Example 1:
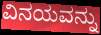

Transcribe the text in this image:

ವಿನಯವನ್ನು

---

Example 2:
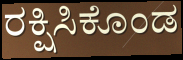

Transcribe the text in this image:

ರಕ್ಷಿಸಿಕೊಂಡ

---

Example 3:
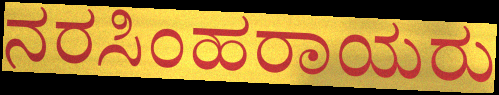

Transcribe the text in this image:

ನರಸಿಂಹರಾಯರು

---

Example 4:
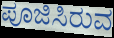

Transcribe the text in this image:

ಪೂಜಿಸಿರುವ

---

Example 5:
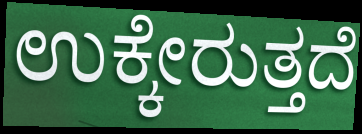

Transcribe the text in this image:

ಉಕ್ಕೇರುತ್ತದೆ